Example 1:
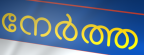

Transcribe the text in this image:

നേർത്ത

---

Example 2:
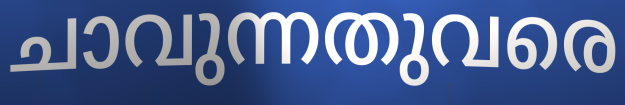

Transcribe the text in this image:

ചാവുന്നതുവരെ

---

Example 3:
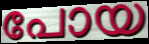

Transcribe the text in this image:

പോയ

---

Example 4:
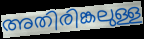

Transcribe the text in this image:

അതിരിങ്കലുള്ള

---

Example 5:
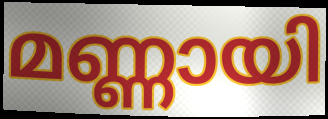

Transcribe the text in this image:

മണ്ണായി